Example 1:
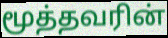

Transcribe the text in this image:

மூத்தவரின்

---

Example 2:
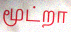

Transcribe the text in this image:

மூட்றா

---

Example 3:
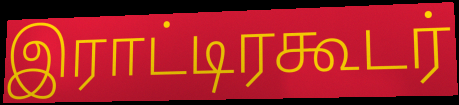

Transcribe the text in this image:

இராட்டிரகூடர்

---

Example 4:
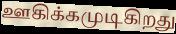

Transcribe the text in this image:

ஊகிக்கமுடிகிறது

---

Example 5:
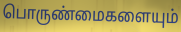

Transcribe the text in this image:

பொருண்மைகளையும்